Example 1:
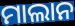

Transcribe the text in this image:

ମାଲାନ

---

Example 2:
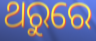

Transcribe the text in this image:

ଥରୁରେ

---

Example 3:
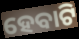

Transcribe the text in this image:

ହେବାଟି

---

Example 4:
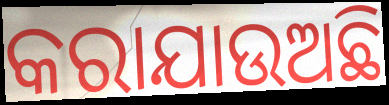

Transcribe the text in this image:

କରାଯାଉଅଛି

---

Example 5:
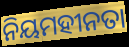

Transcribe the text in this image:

ନିୟମହୀନତା